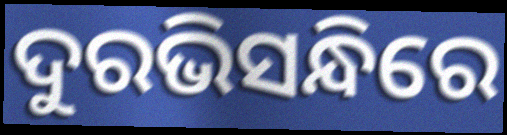
ଦୁରଭିସନ୍ଧିରେ